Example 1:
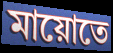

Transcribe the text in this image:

মায়োতে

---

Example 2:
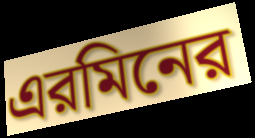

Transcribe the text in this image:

এরমিনের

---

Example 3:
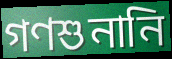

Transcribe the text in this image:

গণশুনানি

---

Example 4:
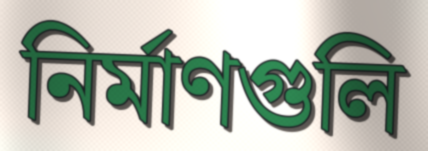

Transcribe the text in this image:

নির্মাণগুলি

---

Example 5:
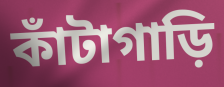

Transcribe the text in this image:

কাঁটাগাড়ি